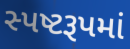
સ્પષ્ટરૂપમાં